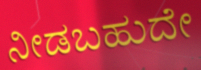
ನೀಡಬಹುದೇ